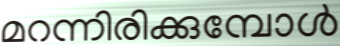
മറന്നിരിക്കുമ്പോൾ